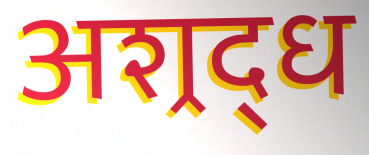
अश्रद्ध